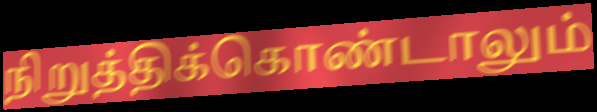
நிறுத்திக்கொண்டாலும்